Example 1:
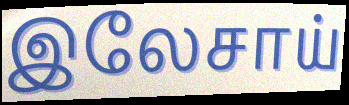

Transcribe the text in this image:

இலேசாய்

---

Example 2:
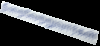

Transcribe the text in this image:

நிறைவேற்றுவார்கள்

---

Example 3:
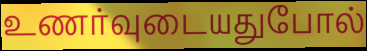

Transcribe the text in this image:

உணர்வுடையதுபோல்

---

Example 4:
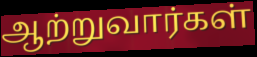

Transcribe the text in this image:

ஆற்றுவார்கள்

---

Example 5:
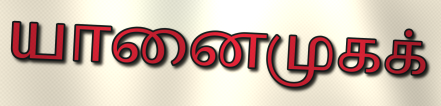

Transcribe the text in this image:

யானைமுகக்